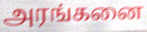
அரங்கனை